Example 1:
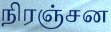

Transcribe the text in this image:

நிரஞ்சன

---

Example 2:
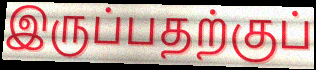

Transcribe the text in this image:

இருப்பதற்குப்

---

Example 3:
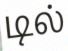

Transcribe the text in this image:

டில்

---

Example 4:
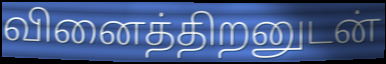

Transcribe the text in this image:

வினைத்திறனுடன்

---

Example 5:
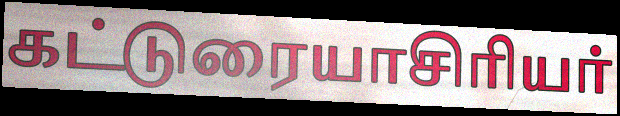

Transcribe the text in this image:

கட்டுரையாசிரியர்